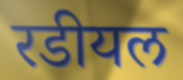
रडीयल